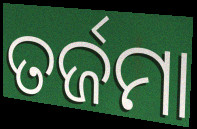
ତର୍ଜମା